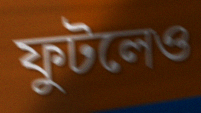
ফুটলেও